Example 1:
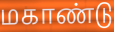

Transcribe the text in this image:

மகாண்டு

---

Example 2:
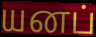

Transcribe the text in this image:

யனப்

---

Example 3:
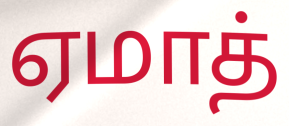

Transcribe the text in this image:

ஏமாத்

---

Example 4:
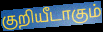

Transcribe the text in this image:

குறியீடாகும்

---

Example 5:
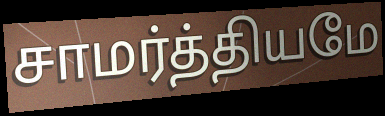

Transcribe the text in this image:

சாமர்த்தியமே